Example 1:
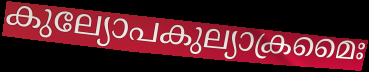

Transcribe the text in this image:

കുല്യോപകുല്യാക്രമൈഃ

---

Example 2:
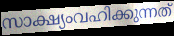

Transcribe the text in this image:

സാക്ഷ്യംവഹിക്കുന്നത്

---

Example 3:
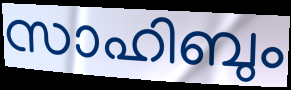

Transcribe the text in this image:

സാഹിബും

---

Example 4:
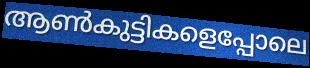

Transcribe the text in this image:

ആൺകുട്ടികളെപ്പോലെ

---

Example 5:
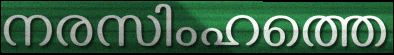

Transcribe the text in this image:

നരസിംഹത്തെ